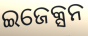
ଇଜେକ୍ସନ